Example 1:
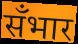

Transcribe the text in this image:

सँभार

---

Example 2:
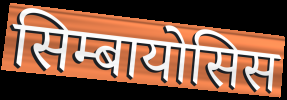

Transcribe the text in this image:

सिम्बायोसिस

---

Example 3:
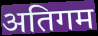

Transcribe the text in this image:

अतिगम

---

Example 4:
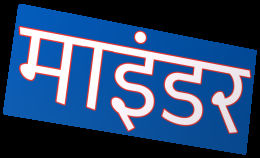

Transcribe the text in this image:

माइंडर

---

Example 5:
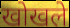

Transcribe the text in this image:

खोखले